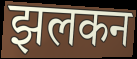
झलकन